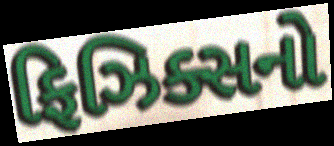
ફિઝિક્સનો